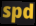
spd